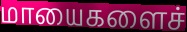
மாயைகளைச்